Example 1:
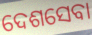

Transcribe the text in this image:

ଦେଶସେବା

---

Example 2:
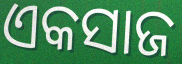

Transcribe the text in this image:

ଏକସାଜ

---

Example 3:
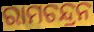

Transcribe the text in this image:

ରାମଚନ୍ଦ୍ରନ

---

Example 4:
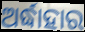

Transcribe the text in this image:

ଅର୍ଦ୍ଧାହାର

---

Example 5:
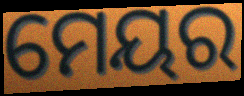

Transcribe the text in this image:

ମେୟର